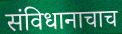
संविधानाचाच